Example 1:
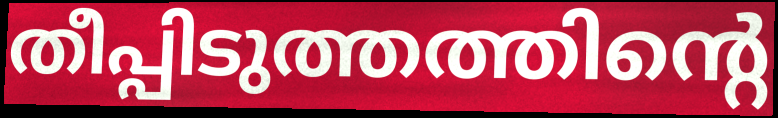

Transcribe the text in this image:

തീപ്പിടുത്തത്തിന്റെ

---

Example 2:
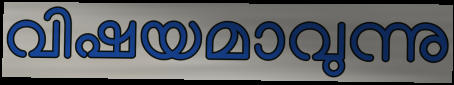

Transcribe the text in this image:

വിഷയമാവുന്നു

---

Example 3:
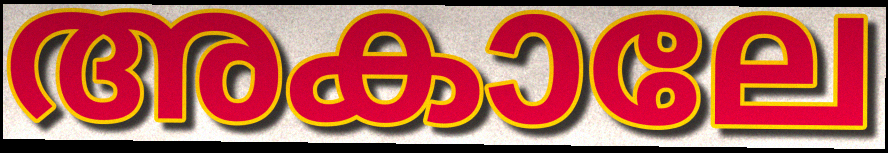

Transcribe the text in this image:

അകാലേ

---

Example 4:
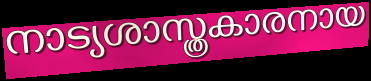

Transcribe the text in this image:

നാട്യശാസ്ത്രകാരനായ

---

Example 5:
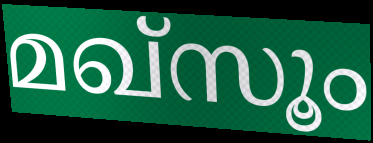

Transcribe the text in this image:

മഖ്സൂം